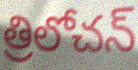
త్రిలోచన్